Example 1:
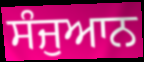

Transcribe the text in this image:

ਸੰਜੁਆਨ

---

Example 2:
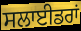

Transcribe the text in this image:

ਸਲਾਈਡਰਾਂ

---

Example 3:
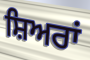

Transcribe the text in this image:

ਸ਼ਿਅਰਾਂ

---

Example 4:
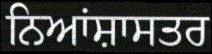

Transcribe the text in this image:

ਨਿਆਂਸ਼ਾਸਤਰ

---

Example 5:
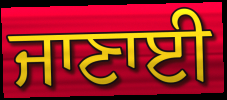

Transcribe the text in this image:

ਜਾਣਾਈ